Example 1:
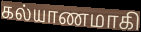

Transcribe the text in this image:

கல்யாணமாகி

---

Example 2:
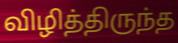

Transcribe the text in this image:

விழித்திருந்த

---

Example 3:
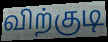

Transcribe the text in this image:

விற்குடி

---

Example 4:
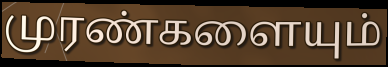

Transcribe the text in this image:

முரண்களையும்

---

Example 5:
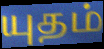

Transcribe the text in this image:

யுதம்